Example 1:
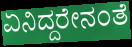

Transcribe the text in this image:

ಏನಿದ್ದರೇನಂತೆ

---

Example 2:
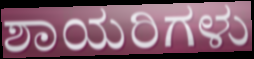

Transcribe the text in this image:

ಶಾಯರಿಗಳು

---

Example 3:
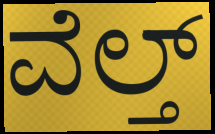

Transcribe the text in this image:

ವೆಲ್ತ್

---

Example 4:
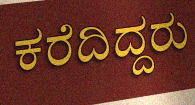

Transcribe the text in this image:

ಕರೆದಿದ್ದರು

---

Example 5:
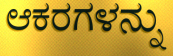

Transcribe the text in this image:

ಆಕರಗಳನ್ನು